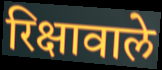
रिक्षावाले